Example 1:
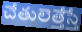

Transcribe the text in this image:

చేతులెత్తేస్తే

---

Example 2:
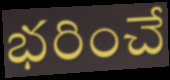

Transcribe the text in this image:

భరించే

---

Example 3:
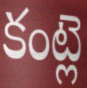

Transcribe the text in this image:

కంట్లె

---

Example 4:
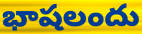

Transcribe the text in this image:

భాషలందు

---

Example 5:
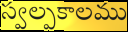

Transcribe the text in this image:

స్వల్పకాలము